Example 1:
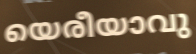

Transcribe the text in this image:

യെരീയാവു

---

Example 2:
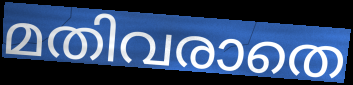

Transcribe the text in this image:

മതിവരാതെ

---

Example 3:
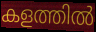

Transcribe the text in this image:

കളത്തിൽ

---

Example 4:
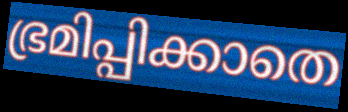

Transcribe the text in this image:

ഭ്രമിപ്പിക്കാതെ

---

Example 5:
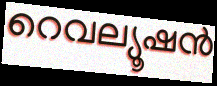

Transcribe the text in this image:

റെവല്യൂഷൻ